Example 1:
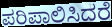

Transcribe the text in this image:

ಪರಿಪಾಲಿಸಿದರೆ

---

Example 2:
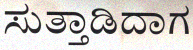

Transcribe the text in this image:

ಸುತ್ತಾಡಿದಾಗ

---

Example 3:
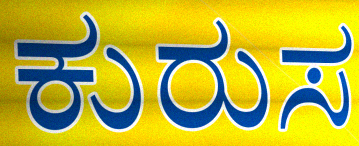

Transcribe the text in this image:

ಕುರುಸ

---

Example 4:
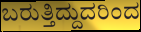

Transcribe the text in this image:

ಬರುತ್ತಿದ್ದುದರಿಂದ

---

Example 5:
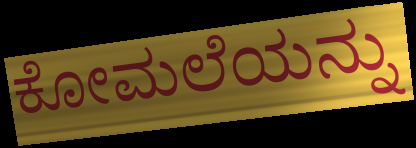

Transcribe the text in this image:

ಕೋಮಲೆಯನ್ನು